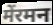
मेंरमन